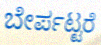
ಬೇರ್ಪಟ್ಟರೆ